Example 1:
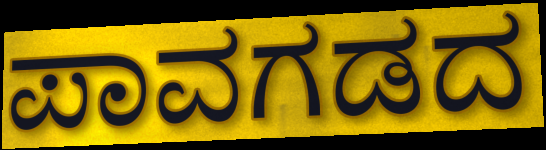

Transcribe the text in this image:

ಪಾವಗಡದ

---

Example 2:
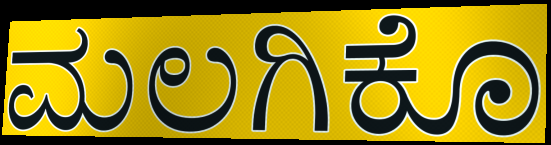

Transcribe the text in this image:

ಮಲಗಿಕೊ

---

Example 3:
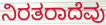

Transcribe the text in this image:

ನಿರತರಾದೆವು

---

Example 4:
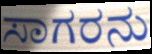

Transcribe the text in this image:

ಸಾಗರನು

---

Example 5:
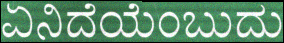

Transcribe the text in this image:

ಏನಿದೆಯೆಂಬುದು